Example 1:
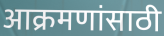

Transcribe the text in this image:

आक्रमणांसाठी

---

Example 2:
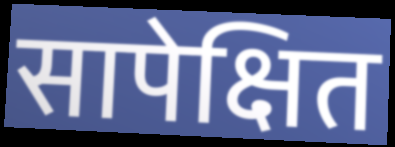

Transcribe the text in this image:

सापेक्षित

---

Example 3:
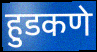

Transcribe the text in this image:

हुडकणे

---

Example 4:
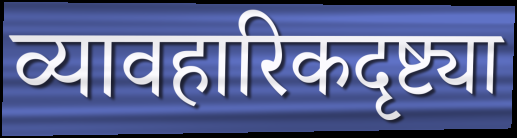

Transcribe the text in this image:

व्यावहारिकदृष्ट्या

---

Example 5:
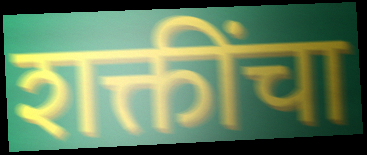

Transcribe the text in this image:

शक्तींचा